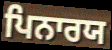
ਪਿਨਾਰਯ